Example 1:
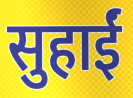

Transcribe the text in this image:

सुहाईं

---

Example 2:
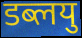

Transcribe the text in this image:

डब्लयु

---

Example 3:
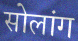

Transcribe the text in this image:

सोलांग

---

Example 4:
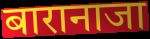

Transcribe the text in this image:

बारानाजा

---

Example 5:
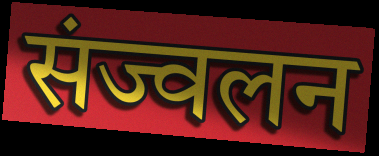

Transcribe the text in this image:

संज्वलन